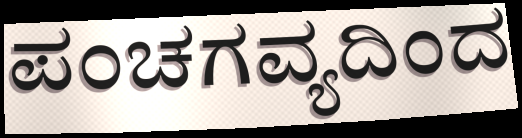
ಪಂಚಗವ್ಯದಿಂದ